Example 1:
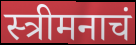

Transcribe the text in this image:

स्त्रीमनाचं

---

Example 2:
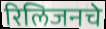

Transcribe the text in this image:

रिलिजनचे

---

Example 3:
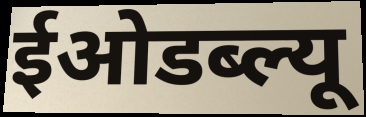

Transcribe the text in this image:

ईओडब्ल्यू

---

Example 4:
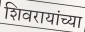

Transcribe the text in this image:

शिवरायांच्या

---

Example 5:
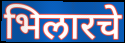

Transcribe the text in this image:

भिलारचे